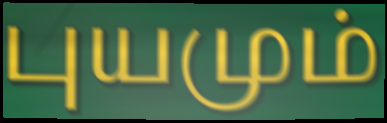
புயமும்